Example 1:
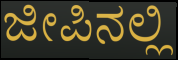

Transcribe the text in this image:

ಜೀಪಿನಲ್ಲಿ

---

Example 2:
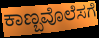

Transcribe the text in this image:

ಕಾಣ್ಬವೊಲೆಸಗೆ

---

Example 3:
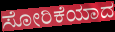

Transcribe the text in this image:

ಸೋರಿಕೆಯಾದ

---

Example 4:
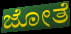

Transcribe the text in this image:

ಜೋತೆ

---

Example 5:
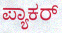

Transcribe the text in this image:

ಪ್ಯಾಕರ್